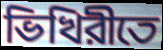
ভিখিরীতে